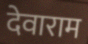
देवाराम